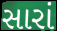
સારાં